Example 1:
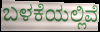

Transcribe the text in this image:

ಬಳಕೆಯಲ್ಲಿವೆ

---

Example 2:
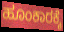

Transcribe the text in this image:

ಹೂಂಕಾರಕ್ಕೆ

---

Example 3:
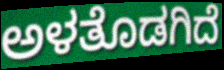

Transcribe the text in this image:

ಅಳತೊಡಗಿದೆ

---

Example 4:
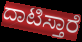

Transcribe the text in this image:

ದಾಟಿಸ್ತಾರೆ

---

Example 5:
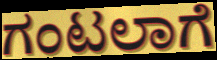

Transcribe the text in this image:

ಗಂಟಲಾಗೆ